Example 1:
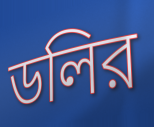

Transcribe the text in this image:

ডলির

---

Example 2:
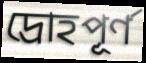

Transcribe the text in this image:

দ্রোহপূর্ণ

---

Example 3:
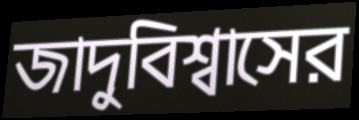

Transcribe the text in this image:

জাদুবিশ্বাসের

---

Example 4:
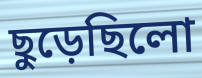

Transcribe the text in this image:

ছুড়েছিলো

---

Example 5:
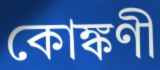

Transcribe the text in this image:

কোঙ্কণী